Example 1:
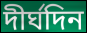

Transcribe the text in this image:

দীৰ্ঘদিন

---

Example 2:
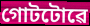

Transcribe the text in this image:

গোটটোৱে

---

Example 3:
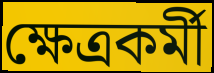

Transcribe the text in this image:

ক্ষেত্ৰকৰ্মী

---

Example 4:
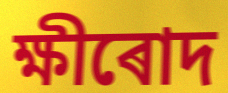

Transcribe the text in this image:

ক্ষীৰোদ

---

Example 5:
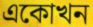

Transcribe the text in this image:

একোখন